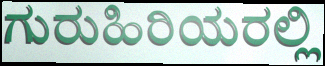
ಗುರುಹಿರಿಯರಲ್ಲಿ